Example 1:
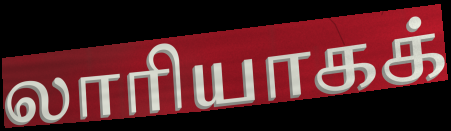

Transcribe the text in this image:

லாரியாகக்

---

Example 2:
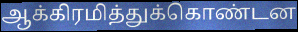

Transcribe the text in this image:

ஆக்கிரமித்துக்கொண்டன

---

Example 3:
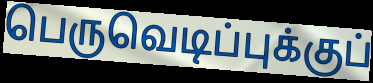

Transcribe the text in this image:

பெருவெடிப்புக்குப்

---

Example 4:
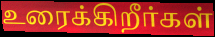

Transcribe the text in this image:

உரைக்கிறீர்கள்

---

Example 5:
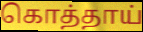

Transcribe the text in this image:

கொத்தாய்